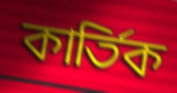
কার্তিক